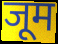
जूम